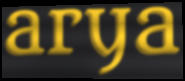
arya